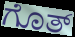
ಗೊತ್